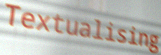
Textualising